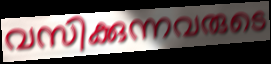
വസിക്കുന്നവരുടെ